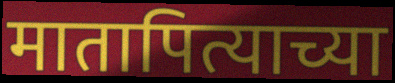
मातापित्याच्या